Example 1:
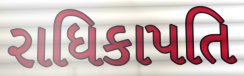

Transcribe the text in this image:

રાધિકાપતિ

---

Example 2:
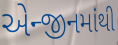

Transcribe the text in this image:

એન્જીનમાંથી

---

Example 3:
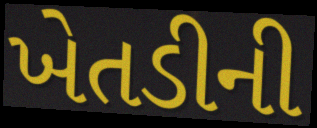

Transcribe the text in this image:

ખેતડીની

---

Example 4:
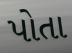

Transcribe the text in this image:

પોતા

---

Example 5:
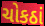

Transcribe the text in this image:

ચોકઠાં